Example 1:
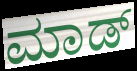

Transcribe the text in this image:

ಮಾಡ್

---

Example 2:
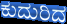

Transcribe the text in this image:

ಕುದುರಿದ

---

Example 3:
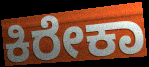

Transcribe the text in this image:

ಕಿರೇಕಾ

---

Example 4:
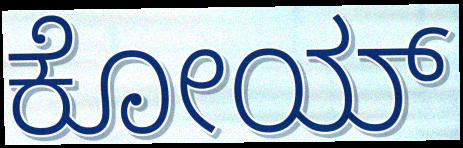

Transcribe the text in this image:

ಕೋಯ್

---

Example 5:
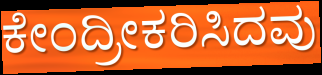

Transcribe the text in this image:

ಕೇಂದ್ರೀಕರಿಸಿದವು